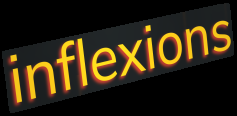
inflexions